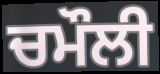
ਚਮੌਲੀ